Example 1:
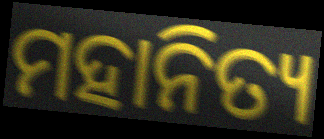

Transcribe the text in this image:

ମହାନିତ୍ୟ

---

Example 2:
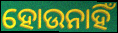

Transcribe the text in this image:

ହୋଉନାହିଁ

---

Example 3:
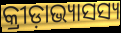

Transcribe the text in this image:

କ୍ରୀଡ଼ାଭ୍ୟାସସ୍ୟ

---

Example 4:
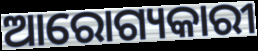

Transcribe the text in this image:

ଆରୋଗ୍ୟକାରୀ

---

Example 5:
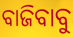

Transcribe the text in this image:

ବାଜିବାବୁ